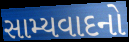
સામ્યવાદનો